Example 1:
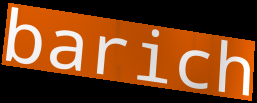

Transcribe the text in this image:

barich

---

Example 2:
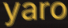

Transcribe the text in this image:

yaro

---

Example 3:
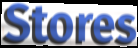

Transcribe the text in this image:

Stores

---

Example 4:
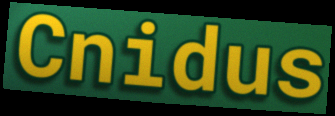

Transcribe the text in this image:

Cnidus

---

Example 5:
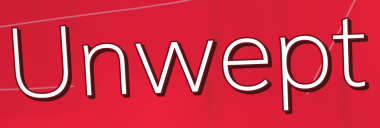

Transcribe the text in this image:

Unwept